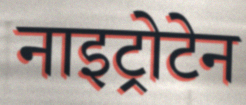
नाइट्रोटेन